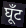
घूँट